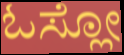
ಓಸ್ಲೋ